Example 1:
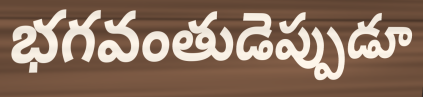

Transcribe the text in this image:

భగవంతుడెప్పుడూ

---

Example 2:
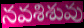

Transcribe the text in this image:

నవశిశువు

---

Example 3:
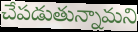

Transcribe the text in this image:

చేపడుతున్నామని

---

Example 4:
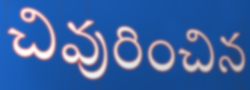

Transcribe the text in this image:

చివురించిన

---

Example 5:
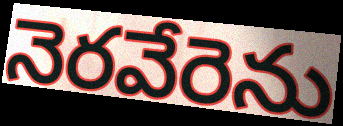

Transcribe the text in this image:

నెరవేరెను